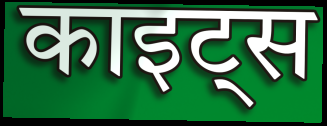
काइट्स